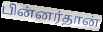
பின்னர்தான்